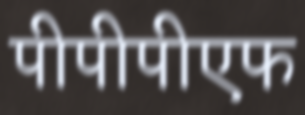
पीपीपीएफ